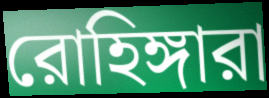
রোহিঙ্গারা